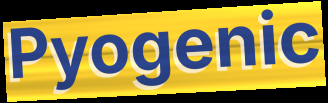
Pyogenic